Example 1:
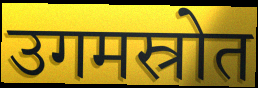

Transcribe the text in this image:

उगमस्रोत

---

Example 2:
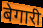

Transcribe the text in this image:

बेगारी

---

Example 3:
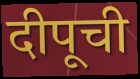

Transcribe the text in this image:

दीपूची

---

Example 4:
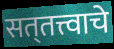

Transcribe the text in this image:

सत्‌तत्त्वाचे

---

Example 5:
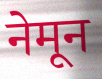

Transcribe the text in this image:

नेमून